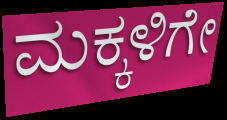
ಮಕ್ಕಳಿಗೇ